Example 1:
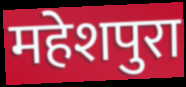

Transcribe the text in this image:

महेशपुरा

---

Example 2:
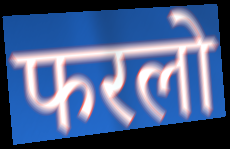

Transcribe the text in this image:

फरलो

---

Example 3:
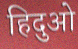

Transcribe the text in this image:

हिदुओ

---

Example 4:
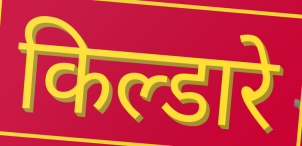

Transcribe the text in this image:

किल्डारे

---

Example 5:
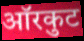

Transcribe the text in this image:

ऑरकुट